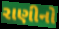
રાણીનો